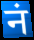
नं